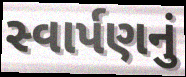
સ્વાર્પણનું